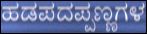
ಹಡಪದಪ್ಪಣ್ಣಗಳ